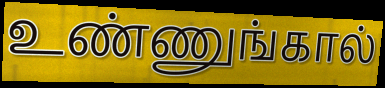
உண்ணுங்கால்